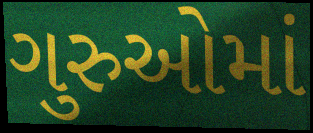
ગુરુઓમાં